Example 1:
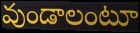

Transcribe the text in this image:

వుండాలంటూ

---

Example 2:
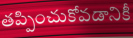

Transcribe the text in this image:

తప్పించుకోవడానికీ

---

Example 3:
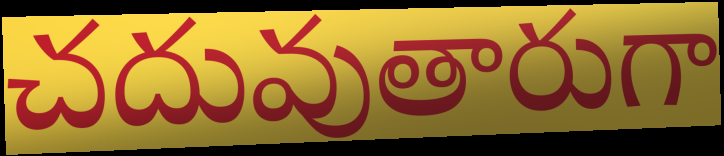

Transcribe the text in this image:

చదువుతారుగా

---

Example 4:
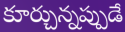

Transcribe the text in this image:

కూర్చున్నప్పుడే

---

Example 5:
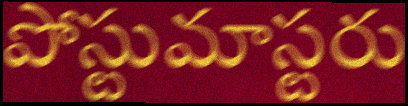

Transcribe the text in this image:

పోస్టుమాస్టరు